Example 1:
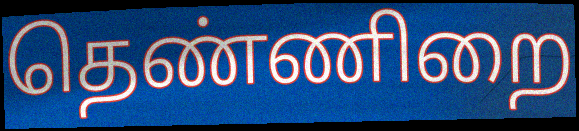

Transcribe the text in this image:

தெண்ணிறை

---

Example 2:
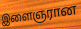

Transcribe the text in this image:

இளைஞரான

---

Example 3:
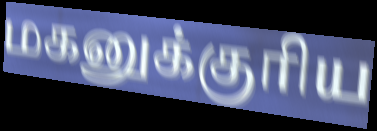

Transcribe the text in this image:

மகனுக்குரிய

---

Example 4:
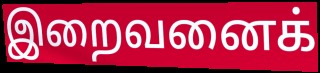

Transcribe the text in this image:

இறைவனைக்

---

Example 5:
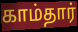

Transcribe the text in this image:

காம்தார்